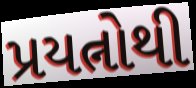
પ્રયત્નોથી